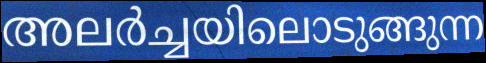
അലർച്ചയിലൊടുങ്ങുന്ന